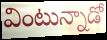
వింటున్నాడో